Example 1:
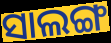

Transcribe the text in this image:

ସାଲଙ୍ଗ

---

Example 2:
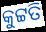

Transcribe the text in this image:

କୁଟ୍ଟତି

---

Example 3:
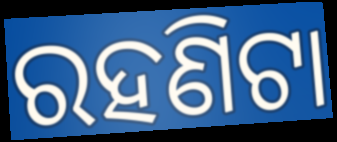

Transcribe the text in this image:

ରହଣିଟା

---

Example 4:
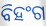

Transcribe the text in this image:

ବିହଂଗ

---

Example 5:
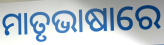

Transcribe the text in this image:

ମାତୃଭାଷାରେ